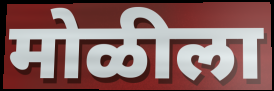
मोळीला